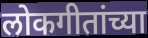
लोकगीतांच्या